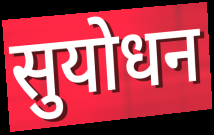
सुयोधन